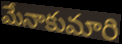
మేనాకుమారి